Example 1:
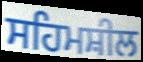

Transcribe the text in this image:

ਸਹਿਮਸ਼ੀਲ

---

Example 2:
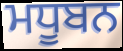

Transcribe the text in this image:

ਮਧੂਬਨ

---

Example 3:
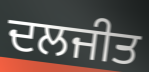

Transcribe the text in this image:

ਦਲਜੀਤ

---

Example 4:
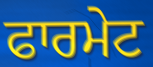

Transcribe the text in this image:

ਫਾਰਮੇਟ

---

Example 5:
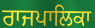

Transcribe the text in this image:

ਰਾਜਪਾਲਿਕਾ